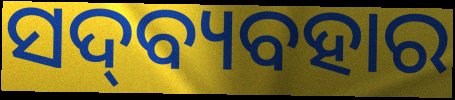
ସଦ୍‍ବ୍ୟବହାର